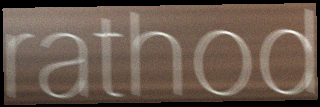
rathod